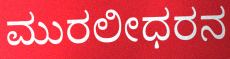
ಮುರಲೀಧರನ